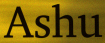
Ashu